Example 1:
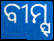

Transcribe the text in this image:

ବୀମ୍ସ୍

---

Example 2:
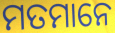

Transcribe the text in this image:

ମତମାନେ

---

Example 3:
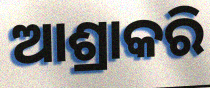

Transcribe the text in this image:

ଆଶ୍ରାକରି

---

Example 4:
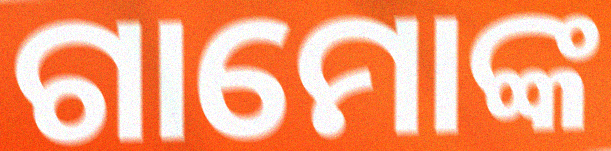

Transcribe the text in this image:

ଗାମୋଙ୍କ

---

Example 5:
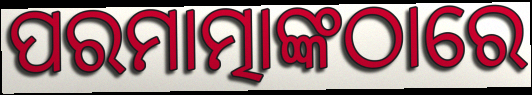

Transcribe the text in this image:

ପରମାତ୍ମାଙ୍କଠାରେ